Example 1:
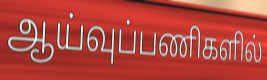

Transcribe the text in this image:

ஆய்வுப்பணிகளில்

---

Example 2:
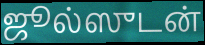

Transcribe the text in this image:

ஜூல்ஸுடன்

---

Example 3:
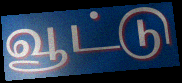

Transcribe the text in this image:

வூட்டு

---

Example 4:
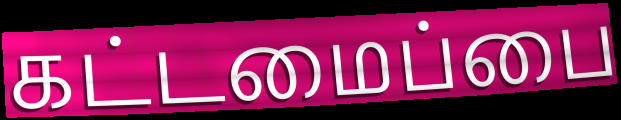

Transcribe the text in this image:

கட்டமைப்பை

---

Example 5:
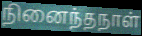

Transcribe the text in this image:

நினைந்தநாள்